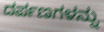
ದರ್ಪಣಗಳನ್ನು